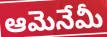
ఆమెనేమీ